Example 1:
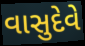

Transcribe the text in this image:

વાસુદેવે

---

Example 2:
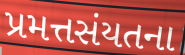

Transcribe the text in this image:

પ્રમત્તસંયતના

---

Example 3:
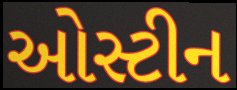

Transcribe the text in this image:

ઓસ્ટીન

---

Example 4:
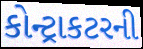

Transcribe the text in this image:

કોન્ટ્રાકટરની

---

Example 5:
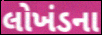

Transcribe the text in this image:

લોખંડના